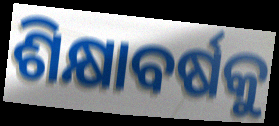
ଶିକ୍ଷାବର୍ଷକୁ